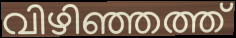
വിഴിഞ്ഞത്ത്